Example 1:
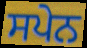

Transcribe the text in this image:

ਸਪੇਨ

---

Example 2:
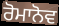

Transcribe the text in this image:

ਰੋਮਾਨੋਵ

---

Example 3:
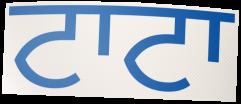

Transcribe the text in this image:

ਟਾਟਾ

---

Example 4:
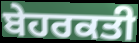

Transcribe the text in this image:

ਬੇਹਰਕਤੀ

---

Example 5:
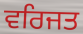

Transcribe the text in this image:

ਵਰਿਜਤ